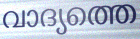
വാദ്യത്തെ